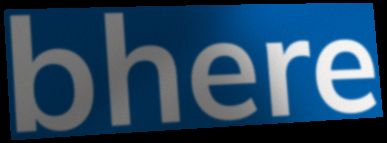
bhere